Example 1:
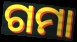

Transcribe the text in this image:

ଗମା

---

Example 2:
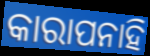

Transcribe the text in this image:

କାରାପନାହି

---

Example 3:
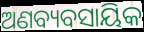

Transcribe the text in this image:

ଅଣବ୍ୟବସାୟିକ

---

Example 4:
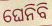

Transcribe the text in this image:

ଘେନିବି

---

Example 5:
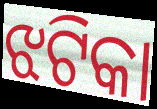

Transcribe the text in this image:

ଝଟିକା